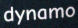
dynamo